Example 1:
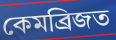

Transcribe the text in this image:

কেমব্ৰিজত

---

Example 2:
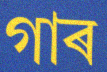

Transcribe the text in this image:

গাৰ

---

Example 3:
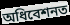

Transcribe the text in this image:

অধিবেশনত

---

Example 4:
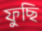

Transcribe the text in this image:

ফুছি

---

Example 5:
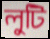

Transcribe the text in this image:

লুটি